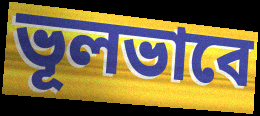
ভূলভাবে